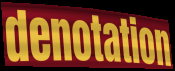
denotation